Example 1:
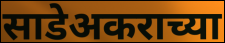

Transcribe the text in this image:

साडेअकराच्या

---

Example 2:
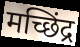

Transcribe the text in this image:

मच्छिंद्र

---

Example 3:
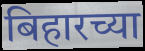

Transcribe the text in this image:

बिहारच्या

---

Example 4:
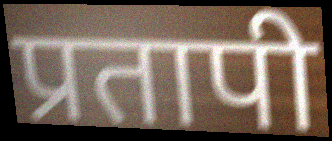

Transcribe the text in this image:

प्रतापी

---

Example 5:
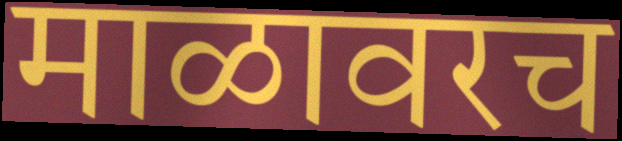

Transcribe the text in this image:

माळावरच